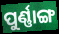
ପୁର୍ଣ୍ଣାଙ୍ଗ